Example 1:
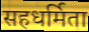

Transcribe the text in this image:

सहधर्मिता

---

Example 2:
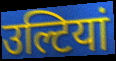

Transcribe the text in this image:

उल्टियां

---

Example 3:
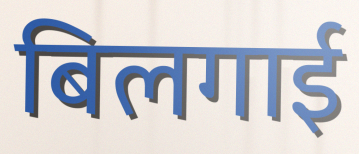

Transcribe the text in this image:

बिलगाई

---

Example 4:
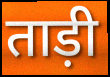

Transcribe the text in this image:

ताड़ी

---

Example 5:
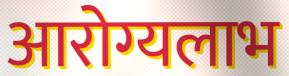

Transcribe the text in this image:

आरोग्यलाभ